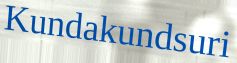
Kundakundsuri